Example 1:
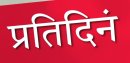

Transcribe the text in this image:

प्रतिदिनं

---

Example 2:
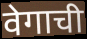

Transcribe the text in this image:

वेगाची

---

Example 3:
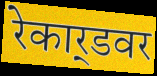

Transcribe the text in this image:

रेकार्डवर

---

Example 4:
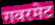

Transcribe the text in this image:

गवरमेट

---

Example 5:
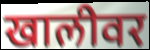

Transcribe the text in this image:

खालीवर